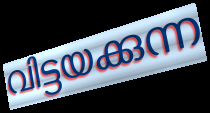
വിട്ടയക്കുന്ന